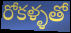
రోకళ్ళతో